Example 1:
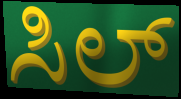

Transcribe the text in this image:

ಸಿಲ್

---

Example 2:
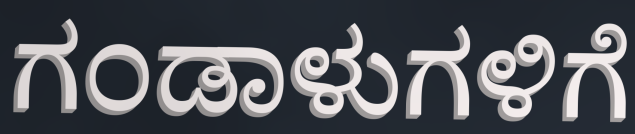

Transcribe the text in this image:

ಗಂಡಾಳುಗಳಿಗೆ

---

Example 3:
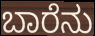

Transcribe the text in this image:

ಬಾರೆನು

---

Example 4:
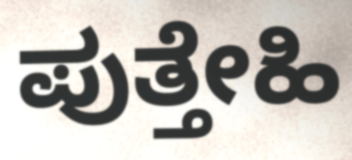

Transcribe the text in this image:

ಪುತ್ತೇಹಿ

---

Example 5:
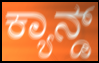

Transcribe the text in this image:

ಕ್ಯಾನ್ಡ್